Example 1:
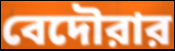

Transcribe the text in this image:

বেদৌরার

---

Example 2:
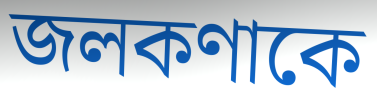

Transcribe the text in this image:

জলকণাকে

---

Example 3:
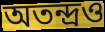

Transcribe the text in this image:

অতন্দ্রও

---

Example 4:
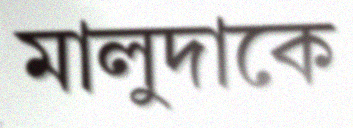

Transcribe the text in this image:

মালুদাকে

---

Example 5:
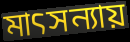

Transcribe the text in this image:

মাৎসন্যায়